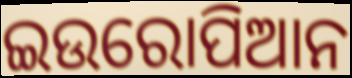
ଇଉରୋପିଆନ